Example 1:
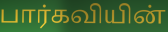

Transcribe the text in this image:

பார்கவியின்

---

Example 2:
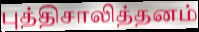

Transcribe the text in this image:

புத்திசாலித்தனம்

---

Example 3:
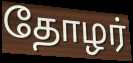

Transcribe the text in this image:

தோழர்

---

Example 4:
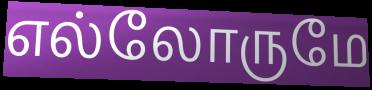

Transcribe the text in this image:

எல்லோருமே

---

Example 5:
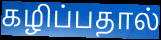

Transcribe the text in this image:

கழிப்பதால்